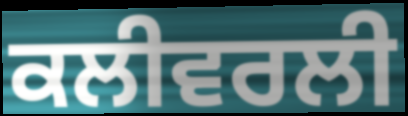
ਕਲੀਵਰਲੀ